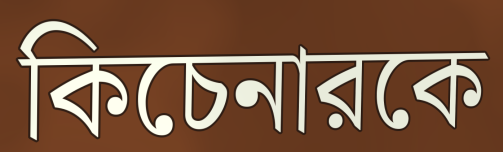
কিচেনারকে